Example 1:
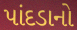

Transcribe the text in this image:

પાંદડાનો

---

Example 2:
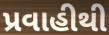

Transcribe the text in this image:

પ્રવાહીથી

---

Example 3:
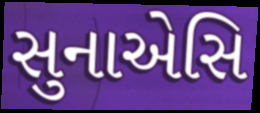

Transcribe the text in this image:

સુનાએસિ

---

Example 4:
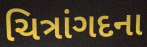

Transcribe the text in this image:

ચિત્રાંગદના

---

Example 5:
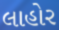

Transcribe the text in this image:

લાહોર